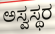
ಅಸ್ವಸ್ಥರ